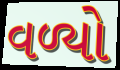
વળ્યો